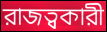
রাজত্বকারী